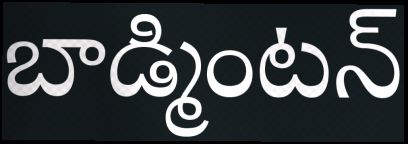
బాడ్మింటన్